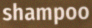
shampoo